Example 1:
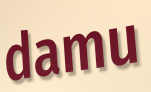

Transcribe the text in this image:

damu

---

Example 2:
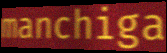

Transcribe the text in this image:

manchiga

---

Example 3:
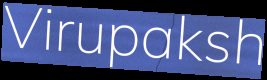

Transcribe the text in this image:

Virupaksh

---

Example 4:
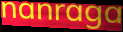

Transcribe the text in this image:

nanraga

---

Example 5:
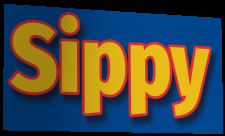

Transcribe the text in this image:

Sippy